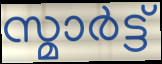
സ്മാർട്ട്